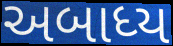
અબાધ્ય